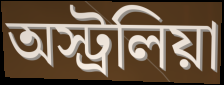
অস্ট্রলিয়া